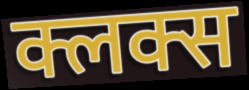
क्लक्स